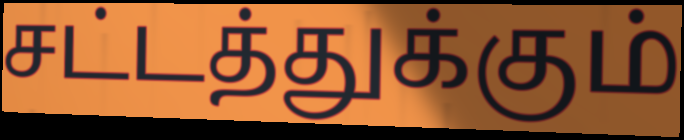
சட்டத்துக்கும்